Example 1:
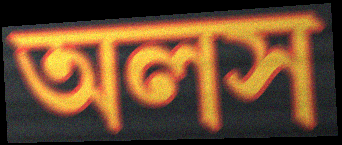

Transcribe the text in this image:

অলস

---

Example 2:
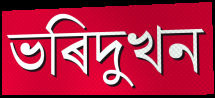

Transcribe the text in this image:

ভৰিদুখন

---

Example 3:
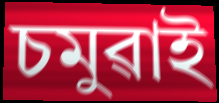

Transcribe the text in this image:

চমুৱাই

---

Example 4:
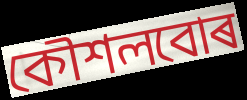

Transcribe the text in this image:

কৌশলবোৰ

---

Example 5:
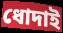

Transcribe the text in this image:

ধোদাই